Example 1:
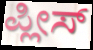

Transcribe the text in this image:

ಪ್ಲೀಸ್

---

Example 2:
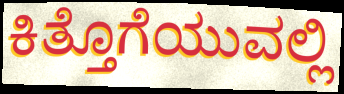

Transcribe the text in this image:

ಕಿತ್ತೊಗೆಯುವಲ್ಲಿ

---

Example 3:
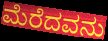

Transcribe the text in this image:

ಮೆರೆದವನು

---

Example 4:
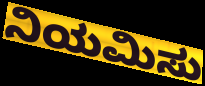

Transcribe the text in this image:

ನಿಯಮಿಸು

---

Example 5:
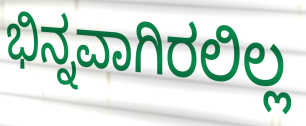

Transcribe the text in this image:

ಭಿನ್ನವಾಗಿರಲಿಲ್ಲ